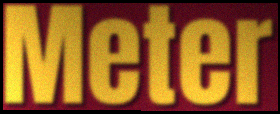
Meter